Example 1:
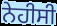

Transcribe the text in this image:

ਨੇਹੀਸੀ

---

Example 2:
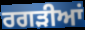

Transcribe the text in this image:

ਰਗੜੀਆਂ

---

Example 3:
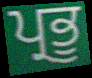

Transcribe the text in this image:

ਪ੍ਰ੍ਰਭੂ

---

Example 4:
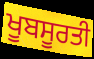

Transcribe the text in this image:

ਖੂਬਸੂਰਤੀ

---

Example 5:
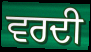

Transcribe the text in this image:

ਵਰਦੀ